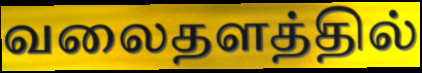
வலைதளத்தில்